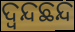
ଦ୍ୱନ୍ଦଛନ୍ଦ